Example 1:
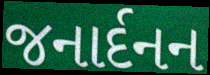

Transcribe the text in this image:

જનાર્દનન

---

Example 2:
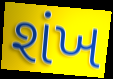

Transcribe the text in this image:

શંખ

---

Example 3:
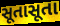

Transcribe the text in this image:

સૂતાસૂતા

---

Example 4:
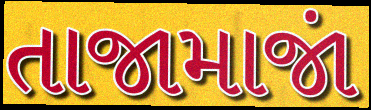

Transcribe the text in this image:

તાજામાજાં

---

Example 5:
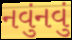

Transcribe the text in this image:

નવુંનવું